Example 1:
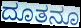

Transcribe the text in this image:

ದೂತನೂ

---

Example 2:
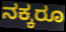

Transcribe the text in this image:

ನಕ್ಕರೂ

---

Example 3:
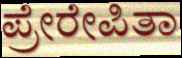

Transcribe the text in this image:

ಪ್ರೇರೇಪಿತಾ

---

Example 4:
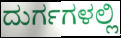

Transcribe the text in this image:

ದುರ್ಗಗಳಲ್ಲಿ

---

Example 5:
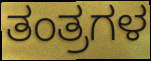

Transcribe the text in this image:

ತಂತ್ರಗಳ